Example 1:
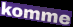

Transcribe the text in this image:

komme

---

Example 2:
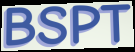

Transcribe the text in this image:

BSPT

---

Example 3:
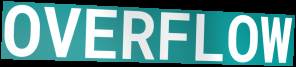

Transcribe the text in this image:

OVERFLOW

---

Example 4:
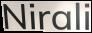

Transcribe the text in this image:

Nirali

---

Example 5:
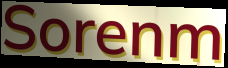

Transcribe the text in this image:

Sorenm